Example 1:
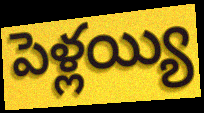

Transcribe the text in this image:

పెళ్లయ్యి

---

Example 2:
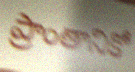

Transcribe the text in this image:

ప్రాంతానికో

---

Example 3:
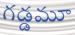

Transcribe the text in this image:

గడ్డమూ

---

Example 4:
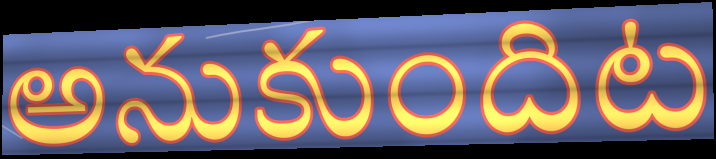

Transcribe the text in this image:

అనుకుందిట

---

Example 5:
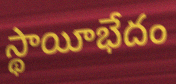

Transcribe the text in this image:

స్థాయీభేదం